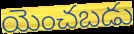
యెంచబడు